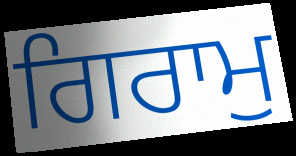
ਗਿਰਾਮੁ